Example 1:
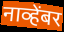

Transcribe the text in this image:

नाव्हेंबर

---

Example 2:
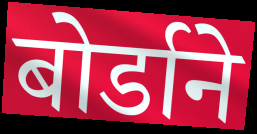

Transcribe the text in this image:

बोर्डाने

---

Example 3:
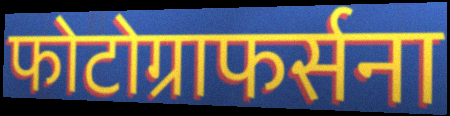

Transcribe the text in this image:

फोटोग्राफर्सना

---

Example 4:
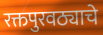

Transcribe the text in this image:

रक्तपुरवठ्याचे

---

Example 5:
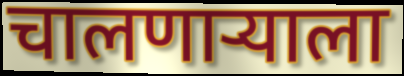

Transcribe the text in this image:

चालणाऱ्याला